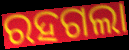
ରହଗଲା